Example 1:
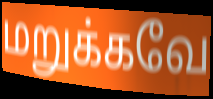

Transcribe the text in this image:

மறுக்கவே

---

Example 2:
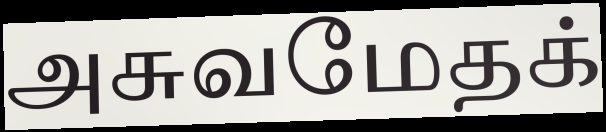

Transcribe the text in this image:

அசுவமேதக்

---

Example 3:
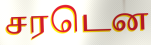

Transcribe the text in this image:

சரடென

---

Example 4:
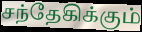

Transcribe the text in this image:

சந்தேகிக்கும்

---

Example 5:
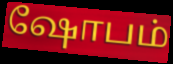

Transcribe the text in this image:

ஷோபம்